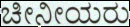
ಚೀನೀಯರು